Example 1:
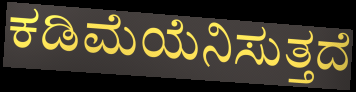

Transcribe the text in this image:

ಕಡಿಮೆಯೆನಿಸುತ್ತದೆ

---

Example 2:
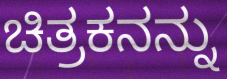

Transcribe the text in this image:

ಚಿತ್ರಕನನ್ನು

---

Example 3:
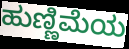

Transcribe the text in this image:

ಹುಣ್ಣಿಮೆಯ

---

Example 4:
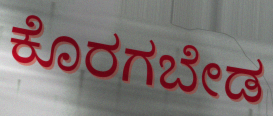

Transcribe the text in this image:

ಕೊರಗಬೇಡ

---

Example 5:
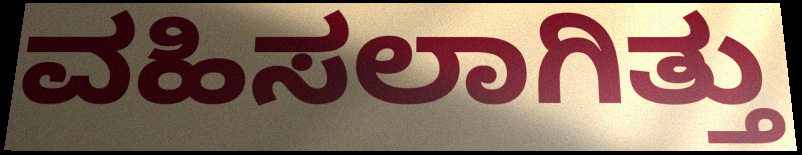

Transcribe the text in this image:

ವಹಿಸಲಾಗಿತ್ತು